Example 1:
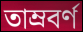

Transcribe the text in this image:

তাম্রবর্ণ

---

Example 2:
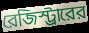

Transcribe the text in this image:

রেজিস্ট্রারের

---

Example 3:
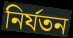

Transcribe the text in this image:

নির্যতন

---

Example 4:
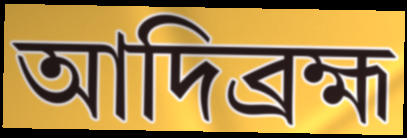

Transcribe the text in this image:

আদিব্রহ্ম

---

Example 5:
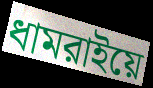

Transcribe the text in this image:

ধামরাইয়ে